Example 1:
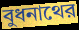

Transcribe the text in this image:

বুধনাথের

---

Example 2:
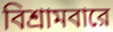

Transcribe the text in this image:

বিশ্রামবারে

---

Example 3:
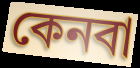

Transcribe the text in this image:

কেনবা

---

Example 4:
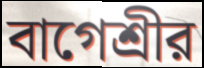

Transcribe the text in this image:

বাগেশ্রীর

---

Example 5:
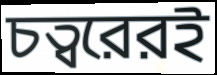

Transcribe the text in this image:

চত্বরেরই